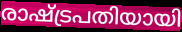
രാഷ്ട്രപതിയായി